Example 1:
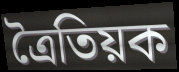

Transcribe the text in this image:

ত্ৰৈতিয়ক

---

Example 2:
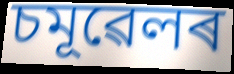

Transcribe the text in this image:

চমূৱেলৰ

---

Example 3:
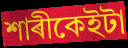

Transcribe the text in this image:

শাৰীকেইটা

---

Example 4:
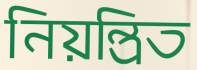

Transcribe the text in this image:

নিয়ন্ত্ৰিত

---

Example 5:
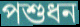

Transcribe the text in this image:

পশুধন